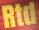
Rtd